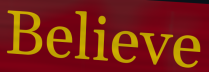
Believe